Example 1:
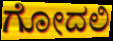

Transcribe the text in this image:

ಗೋದಲಿ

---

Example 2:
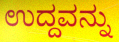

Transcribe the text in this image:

ಉದ್ದವನ್ನು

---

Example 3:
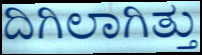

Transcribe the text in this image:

ದಿಗಿಲಾಗಿತ್ತು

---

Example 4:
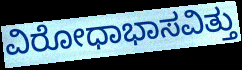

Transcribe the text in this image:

ವಿರೋಧಾಭಾಸವಿತ್ತು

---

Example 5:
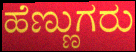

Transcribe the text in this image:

ಹೆಣ್ಣುಗರು